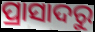
ପ୍ରାସାଦରୁ